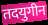
तदयुगीन